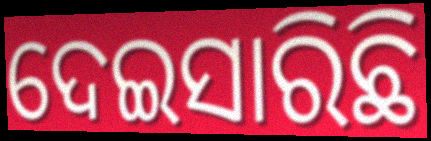
ଦେଇସାରିଛି